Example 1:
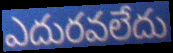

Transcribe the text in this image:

ఎదురవలేదు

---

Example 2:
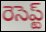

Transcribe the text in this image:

రెసెప్ట్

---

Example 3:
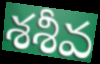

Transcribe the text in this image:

శశీవ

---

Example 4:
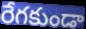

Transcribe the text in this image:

రేగకుండా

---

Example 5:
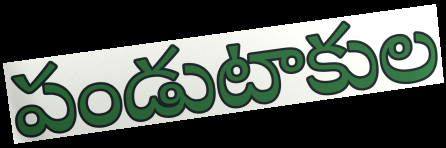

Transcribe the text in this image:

పండుటాకుల